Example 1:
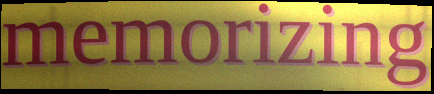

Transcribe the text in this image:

memorizing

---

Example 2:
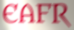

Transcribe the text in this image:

EAFR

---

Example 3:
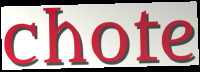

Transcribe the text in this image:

chote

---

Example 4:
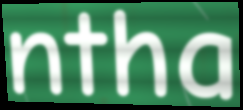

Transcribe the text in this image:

ntha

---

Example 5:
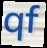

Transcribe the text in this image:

qf